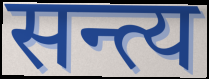
सन्त्य